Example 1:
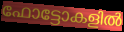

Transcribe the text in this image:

ഫോട്ടോകളിൽ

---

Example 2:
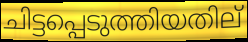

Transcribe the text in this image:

ചിട്ടപ്പെടുത്തിയതില്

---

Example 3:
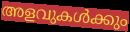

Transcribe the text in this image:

അളവുകൾക്കും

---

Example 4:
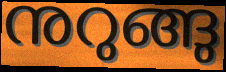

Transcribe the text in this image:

നുറുങ്ങു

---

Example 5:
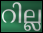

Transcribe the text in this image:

റില്ല